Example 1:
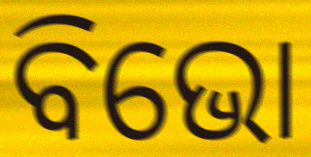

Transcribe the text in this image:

ବିଭୋ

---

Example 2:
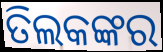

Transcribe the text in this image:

ତିଲକଙ୍କର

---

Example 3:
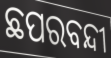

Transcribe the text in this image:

ଛପରବନ୍ଦୀ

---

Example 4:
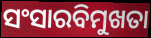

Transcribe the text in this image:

ସଂସାରବିମୁଖତା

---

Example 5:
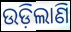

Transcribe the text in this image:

ଉଡ଼ିଲାଣି